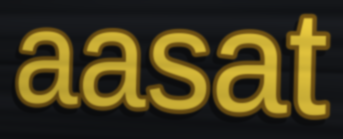
aasat